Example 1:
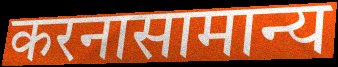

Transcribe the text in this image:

करनासामान्य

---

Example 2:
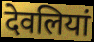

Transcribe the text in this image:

देवलियां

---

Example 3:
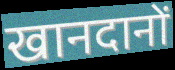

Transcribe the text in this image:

खानदानों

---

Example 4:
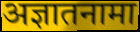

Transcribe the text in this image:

अज्ञातनामा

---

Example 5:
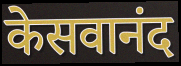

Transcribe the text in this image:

केसवानंद